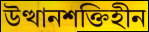
উত্থানশক্তিহীন